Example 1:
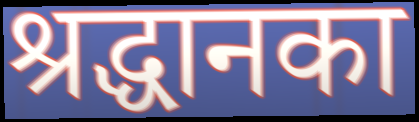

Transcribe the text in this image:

श्रद्धानका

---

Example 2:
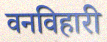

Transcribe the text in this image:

वनविहारी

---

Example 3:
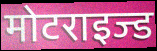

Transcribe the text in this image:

मोटराइज्ड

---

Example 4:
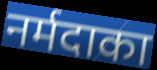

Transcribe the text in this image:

नर्मदाका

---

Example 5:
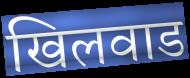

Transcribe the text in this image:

खिलवाड